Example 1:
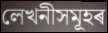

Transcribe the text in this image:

লেখনীসমূহৰ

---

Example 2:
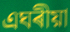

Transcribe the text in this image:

এঘৰীয়া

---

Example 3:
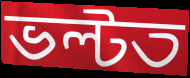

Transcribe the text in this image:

ভল্টত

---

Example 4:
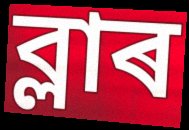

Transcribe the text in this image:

ব্লাৰ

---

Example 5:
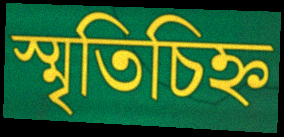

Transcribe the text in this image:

স্মৃতিচিহ্ন